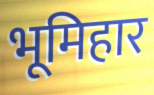
भूमिहार